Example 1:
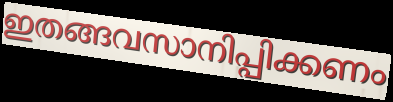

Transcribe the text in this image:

ഇതങ്ങവസാനിപ്പിക്കണം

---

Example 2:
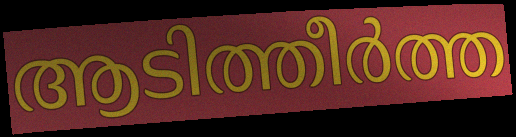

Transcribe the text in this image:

ആടിത്തീർത്ത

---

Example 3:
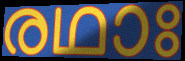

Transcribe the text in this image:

രഥാഃ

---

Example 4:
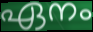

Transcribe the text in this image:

ഏനം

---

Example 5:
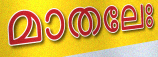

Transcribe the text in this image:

മാതലേഃ